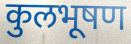
कुलभूषण